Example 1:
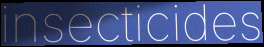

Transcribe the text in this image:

insecticides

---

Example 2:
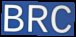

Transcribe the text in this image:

BRC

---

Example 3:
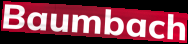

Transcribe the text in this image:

Baumbach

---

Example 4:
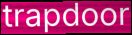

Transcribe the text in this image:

trapdoor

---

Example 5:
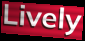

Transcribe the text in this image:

Lively